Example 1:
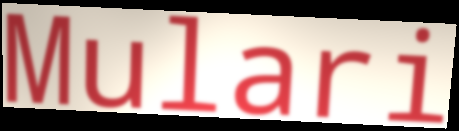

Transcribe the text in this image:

Mulari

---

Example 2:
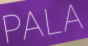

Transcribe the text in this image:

PALA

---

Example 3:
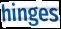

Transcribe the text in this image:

hinges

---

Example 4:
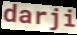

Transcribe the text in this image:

darji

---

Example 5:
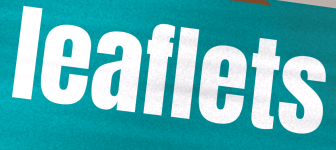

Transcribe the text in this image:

leaflets